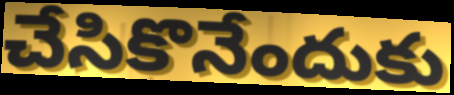
చేసికొనేందుకు